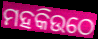
ମହକିଉଠେ